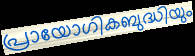
പ്രായോഗികബുദ്ധിയും